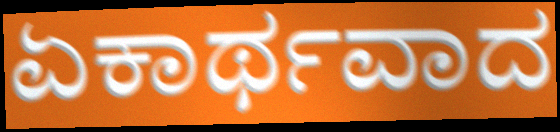
ಏಕಾರ್ಥವಾದ